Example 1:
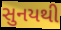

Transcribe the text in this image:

સુનયથી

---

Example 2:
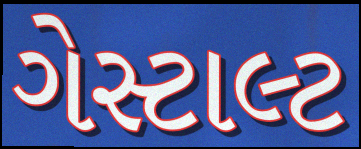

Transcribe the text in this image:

ગેસ્ટાલ્ટ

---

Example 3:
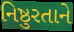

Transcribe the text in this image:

નિષ્ઠુરતાને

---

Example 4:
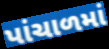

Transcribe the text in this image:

પાંચાળમાં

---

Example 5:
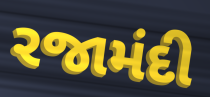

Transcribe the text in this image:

રજામંદી